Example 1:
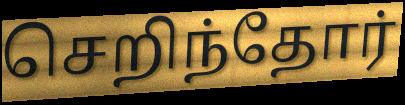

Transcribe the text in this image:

செறிந்தோர்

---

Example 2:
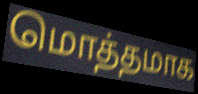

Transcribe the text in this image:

மொத்தமாக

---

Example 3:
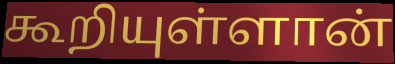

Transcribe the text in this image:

கூறியுள்ளான்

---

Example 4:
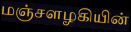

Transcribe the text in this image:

மஞ்சளழகியின்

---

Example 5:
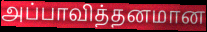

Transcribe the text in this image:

அப்பாவித்தனமான